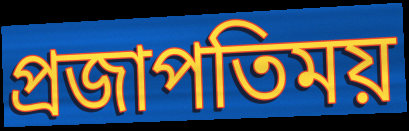
প্রজাপতিময়